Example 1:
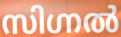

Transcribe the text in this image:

സിഗ്നൽ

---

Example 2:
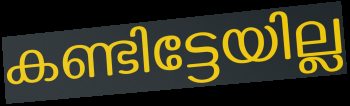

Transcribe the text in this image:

കണ്ടിട്ടേയില്ല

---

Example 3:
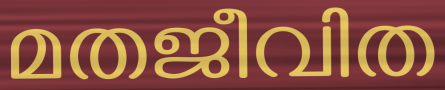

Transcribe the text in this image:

മതജീവിത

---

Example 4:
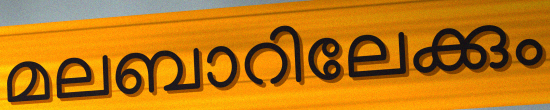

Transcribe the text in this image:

മലബാറിലേക്കും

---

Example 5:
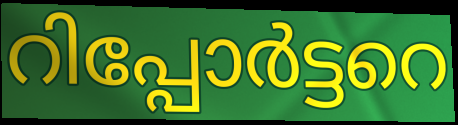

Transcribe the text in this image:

റിപ്പോർട്ടറെ